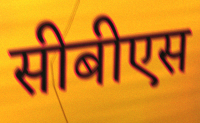
सीबीएस